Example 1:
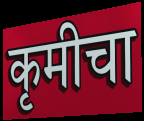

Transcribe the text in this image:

कृमीचा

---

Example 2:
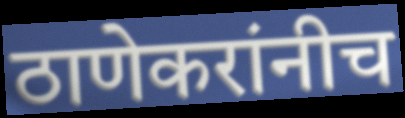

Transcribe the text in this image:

ठाणेकरांनीच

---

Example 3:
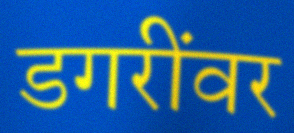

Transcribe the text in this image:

डगरींवर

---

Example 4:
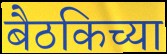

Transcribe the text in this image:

बैठकिच्या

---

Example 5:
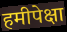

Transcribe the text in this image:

हमीपेक्षा